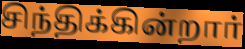
சிந்திக்கின்றார்